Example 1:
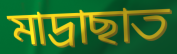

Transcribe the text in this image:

মাদ্ৰাছাত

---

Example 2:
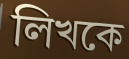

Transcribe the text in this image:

লিখকে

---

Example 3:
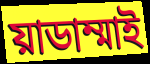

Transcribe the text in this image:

য়াডাম্মাই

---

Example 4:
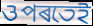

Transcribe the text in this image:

ওপৰতেই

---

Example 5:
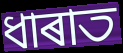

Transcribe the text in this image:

ধাৰাত